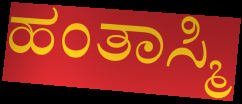
ಹಂತಾಸ್ಮಿ